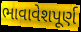
ભાવાવેશપૂર્ણ